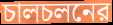
চালচলনের